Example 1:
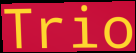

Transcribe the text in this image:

Trio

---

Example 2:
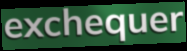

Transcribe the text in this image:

exchequer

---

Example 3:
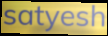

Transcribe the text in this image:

satyesh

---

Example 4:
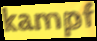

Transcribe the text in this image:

kampf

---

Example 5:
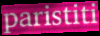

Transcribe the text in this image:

paristiti